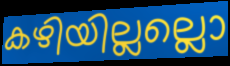
കഴിയില്ലല്ലൊ